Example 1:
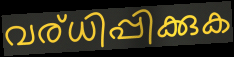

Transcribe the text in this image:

വര്ധിപ്പിക്കുക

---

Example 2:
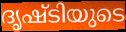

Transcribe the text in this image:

ദൃഷ്ടിയുടെ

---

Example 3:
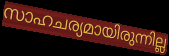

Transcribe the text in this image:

സാഹചര്യമായിരുന്നില്ല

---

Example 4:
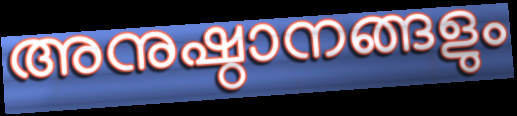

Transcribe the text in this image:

അനുഷ്ഠാനങ്ങളും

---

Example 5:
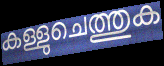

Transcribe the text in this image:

കള്ളുചെത്തുക